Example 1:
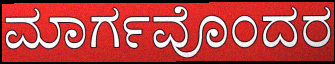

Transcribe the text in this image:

ಮಾರ್ಗವೊಂದರ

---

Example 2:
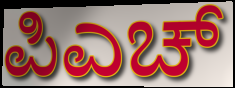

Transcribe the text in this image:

ಪಿಎಚ್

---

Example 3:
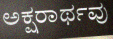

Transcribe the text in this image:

ಅಕ್ಷರಾರ್ಥವು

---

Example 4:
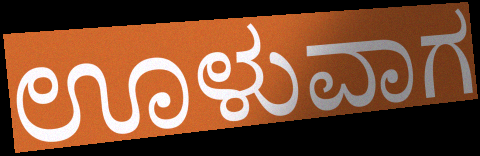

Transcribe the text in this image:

ಊಳುವಾಗ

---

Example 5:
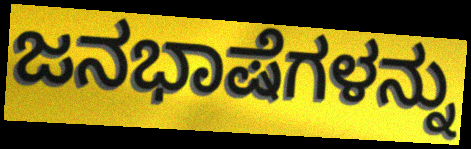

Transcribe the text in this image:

ಜನಭಾಷೆಗಳನ್ನು